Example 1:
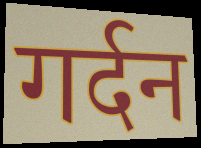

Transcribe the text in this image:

गर्दन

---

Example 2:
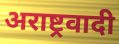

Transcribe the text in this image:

अराष्ट्रवादी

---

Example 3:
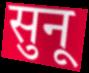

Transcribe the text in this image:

सुनू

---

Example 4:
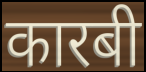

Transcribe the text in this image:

कारबी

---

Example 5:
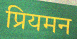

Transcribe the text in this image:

प्रियमन